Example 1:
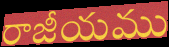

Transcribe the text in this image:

రాజీయము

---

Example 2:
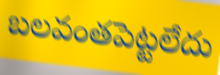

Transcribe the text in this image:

బలవంతపెట్టలేదు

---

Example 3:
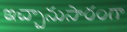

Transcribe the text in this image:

ఇచ్చానుసారంగా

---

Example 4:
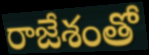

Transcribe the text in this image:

రాజేశంతో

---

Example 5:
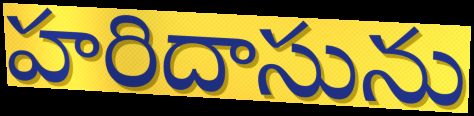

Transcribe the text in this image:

హరిదాసును